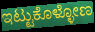
ಇಟ್ಟುಕೊಳ್ಳೋಣ